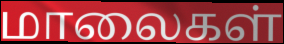
மாலைகள்